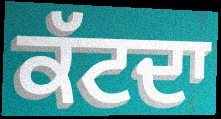
ਕੱਟਦਾ